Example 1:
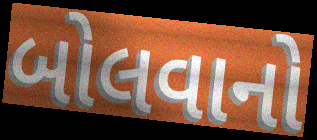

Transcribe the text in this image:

બોલવાનો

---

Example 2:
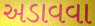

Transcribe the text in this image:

અડાવવા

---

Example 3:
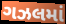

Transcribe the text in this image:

ગઝલમાં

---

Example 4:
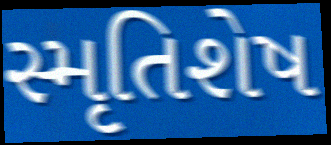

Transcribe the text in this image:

સ્મૃતિશેષ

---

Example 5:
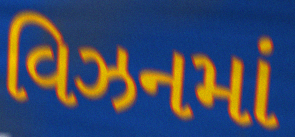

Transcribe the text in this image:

વિઝનમાં